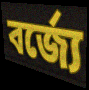
বর্জ্যে